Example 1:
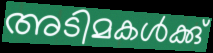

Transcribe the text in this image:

അടിമകൾക്കു്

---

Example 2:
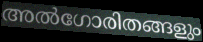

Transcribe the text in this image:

അൽഗോരിതങ്ങളും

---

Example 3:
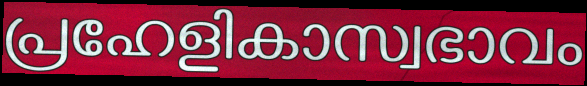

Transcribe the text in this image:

പ്രഹേളികാസ്വഭാവം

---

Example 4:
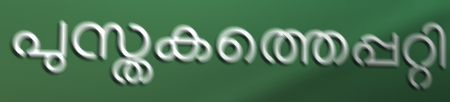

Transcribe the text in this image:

പുസ്തകത്തെപ്പറ്റി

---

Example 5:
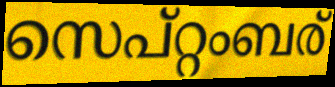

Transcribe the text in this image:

സെപ്റ്റംബര്